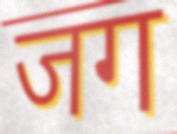
जग